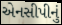
એનસીપીનું